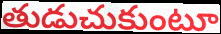
తుడుచుకుంటూ